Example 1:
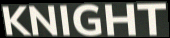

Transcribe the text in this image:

KNIGHT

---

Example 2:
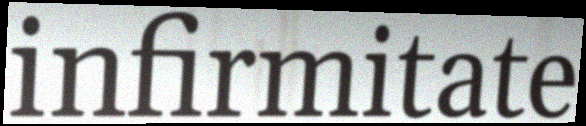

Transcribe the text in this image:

infirmitate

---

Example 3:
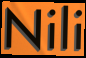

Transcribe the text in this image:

Nili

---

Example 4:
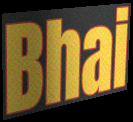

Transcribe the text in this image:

Bhai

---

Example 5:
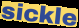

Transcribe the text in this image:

sickle